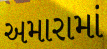
અમારામાં